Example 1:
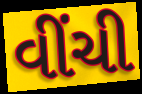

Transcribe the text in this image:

વીંચી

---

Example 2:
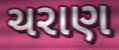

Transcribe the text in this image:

ચરાણ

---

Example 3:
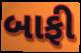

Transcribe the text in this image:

બાફી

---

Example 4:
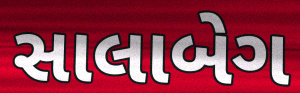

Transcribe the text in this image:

સાલાબેગ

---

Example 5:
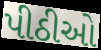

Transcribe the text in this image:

પીઠીઓ